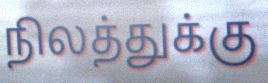
நிலத்துக்கு